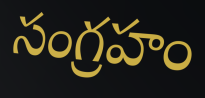
సంగ్రహం